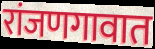
रांजणगावात